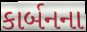
કાર્બનના